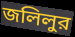
জলিলুর